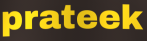
prateek